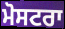
ਮੋਸਟਰਾ